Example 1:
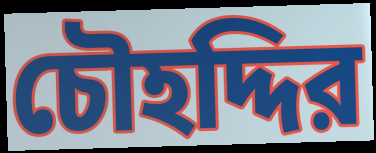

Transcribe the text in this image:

চৌহদ্দির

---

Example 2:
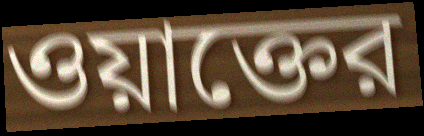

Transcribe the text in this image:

ওয়াক্তের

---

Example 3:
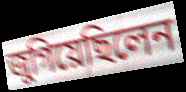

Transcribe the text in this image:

জুগিয়েছিলেন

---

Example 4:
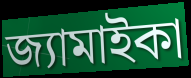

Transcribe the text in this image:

জ্যামাইকা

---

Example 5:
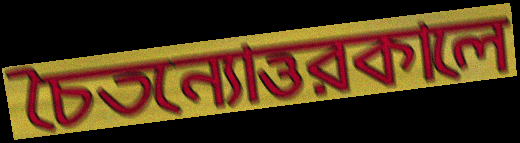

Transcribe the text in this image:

চৈতন্যোত্তরকালে